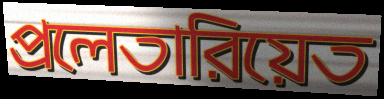
প্রলেতারিয়েত